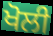
ਖੋਲੀ